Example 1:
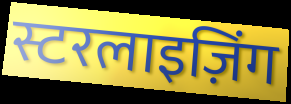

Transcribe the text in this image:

स्टरलाइज़िंग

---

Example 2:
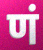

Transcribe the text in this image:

णं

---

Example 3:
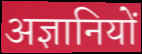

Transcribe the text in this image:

अज्ञानियों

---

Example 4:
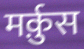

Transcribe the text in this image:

मर्क़ुस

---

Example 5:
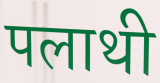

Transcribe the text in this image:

पलाथी